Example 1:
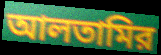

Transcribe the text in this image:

আলতামির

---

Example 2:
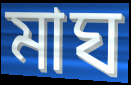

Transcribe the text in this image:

মাঘ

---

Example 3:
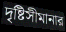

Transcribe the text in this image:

দৃষ্টিসীমানার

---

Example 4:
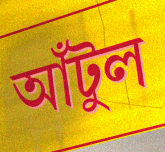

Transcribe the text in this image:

আঁটুল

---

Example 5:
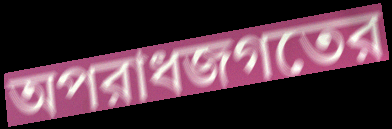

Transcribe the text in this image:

অপরাধজগতের